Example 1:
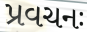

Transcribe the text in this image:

પ્રવચનઃ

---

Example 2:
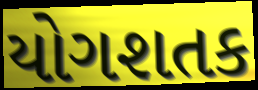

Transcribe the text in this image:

યોગશતક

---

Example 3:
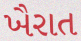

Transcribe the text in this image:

ખૈરાત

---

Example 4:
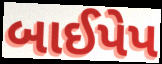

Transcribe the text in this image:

બાઈપેપ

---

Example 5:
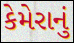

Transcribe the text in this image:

કેમેરાનું